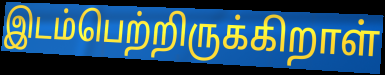
இடம்பெற்றிருக்கிறாள்